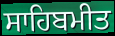
ਸਾਹਿਬਮੀਤ